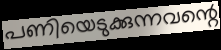
പണിയെടുക്കുന്നവന്റെ